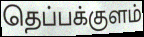
தெப்பக்குளம்